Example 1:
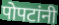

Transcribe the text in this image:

पोपटांनी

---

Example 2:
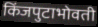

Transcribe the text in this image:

किंजपुटाभोवती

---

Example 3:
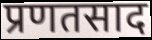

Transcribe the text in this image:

प्रणतसाद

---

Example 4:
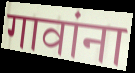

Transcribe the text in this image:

गावांना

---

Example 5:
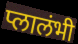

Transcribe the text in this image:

प्लालंभी